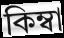
কিম্বা